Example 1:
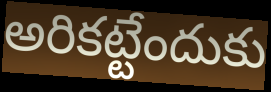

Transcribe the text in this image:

అరికట్టేందుకు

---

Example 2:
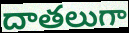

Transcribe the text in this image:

దాతలుగా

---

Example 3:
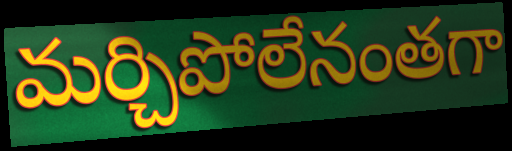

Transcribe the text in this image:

మర్చిపోలేనంతగా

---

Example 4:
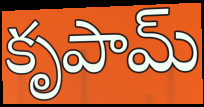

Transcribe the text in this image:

కృపామ్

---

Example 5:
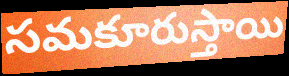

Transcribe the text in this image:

సమకూరుస్తాయి